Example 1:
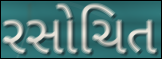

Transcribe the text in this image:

રસોચિત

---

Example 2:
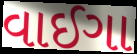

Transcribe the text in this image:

વાઈગા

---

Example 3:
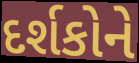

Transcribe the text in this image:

દર્શકોને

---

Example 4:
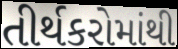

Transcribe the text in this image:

તીર્થકરોમાંથી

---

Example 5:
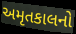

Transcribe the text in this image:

અમૃતકાલનો